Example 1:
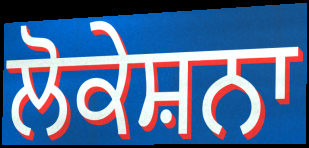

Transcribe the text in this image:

ਲੋਕੇਸ਼ਨਾ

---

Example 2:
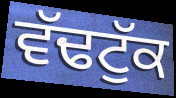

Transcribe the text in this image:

ਵੱਢਟੁੱਕ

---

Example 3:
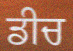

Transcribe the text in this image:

ਡੀਚ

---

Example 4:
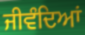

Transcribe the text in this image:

ਜੀਵੰਦਿਆਂ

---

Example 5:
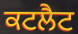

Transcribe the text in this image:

ਕਟਲੈਟ